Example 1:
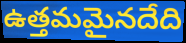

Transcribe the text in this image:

ఉత్తమమైనదేది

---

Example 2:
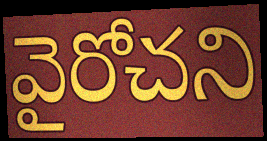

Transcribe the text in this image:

వైరోచని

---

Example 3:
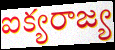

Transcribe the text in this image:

ఐక్యరాజ్య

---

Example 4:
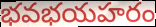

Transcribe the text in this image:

భవభయహరం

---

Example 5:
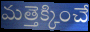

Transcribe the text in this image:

మత్తెక్కించే